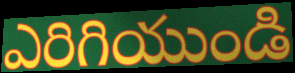
ఎరిగియుండి